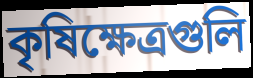
কৃষিক্ষেত্রগুলি